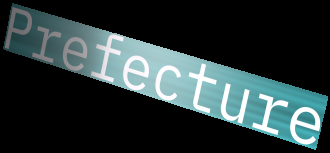
Prefecture